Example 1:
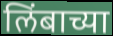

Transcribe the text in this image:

लिंबाच्या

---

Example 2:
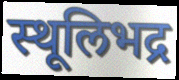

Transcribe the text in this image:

स्थूलिभद्र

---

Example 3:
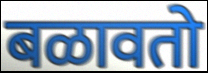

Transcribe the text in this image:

बळावतो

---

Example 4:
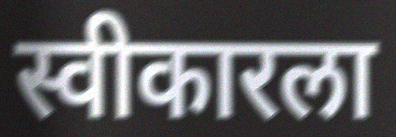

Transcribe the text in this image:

स्वीकारला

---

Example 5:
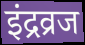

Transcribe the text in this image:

इंद्रव्रज